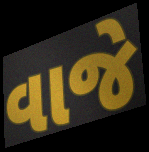
વાજે